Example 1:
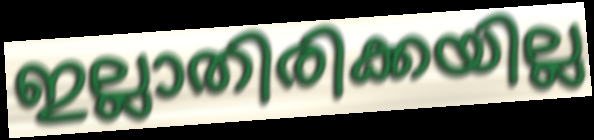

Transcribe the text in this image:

ഇല്ലാതിരിക്കയില്ല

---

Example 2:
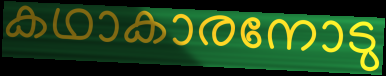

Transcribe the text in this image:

കഥാകാരനോടു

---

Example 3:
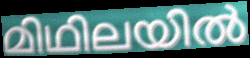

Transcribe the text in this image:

മിഥിലയിൽ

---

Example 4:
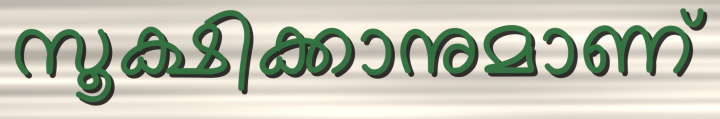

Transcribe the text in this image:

സൂക്ഷിക്കാനുമാണ്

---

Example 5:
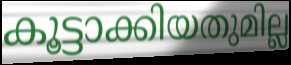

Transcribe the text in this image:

കൂട്ടാക്കിയതുമില്ല